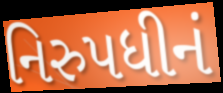
નિરુપધીનં